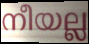
നീയല്ല